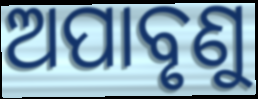
ଅପାବୃଣୁ